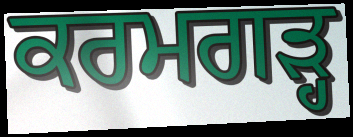
ਕਰਮਗੜ੍ਹ